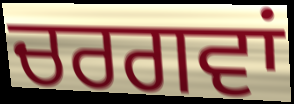
ਚਰਗਵਾਂ